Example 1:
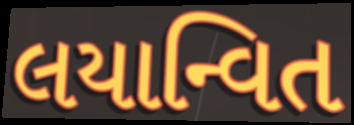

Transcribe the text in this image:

લયાન્વિત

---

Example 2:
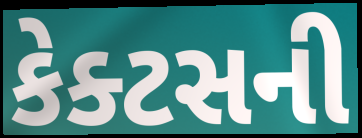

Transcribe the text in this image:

કેક્ટસની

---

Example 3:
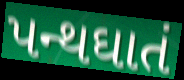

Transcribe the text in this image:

પન્થઘાતં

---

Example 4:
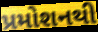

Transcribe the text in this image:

પ્રમોશનથી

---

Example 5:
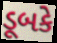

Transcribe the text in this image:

ડૂબકે